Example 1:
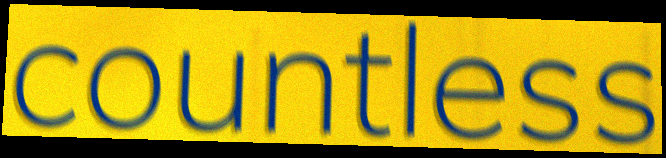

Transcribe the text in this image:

countless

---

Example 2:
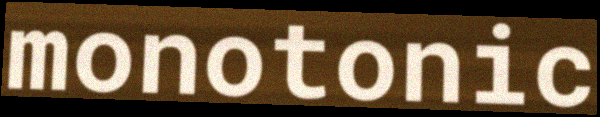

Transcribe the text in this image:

monotonic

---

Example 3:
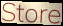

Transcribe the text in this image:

Store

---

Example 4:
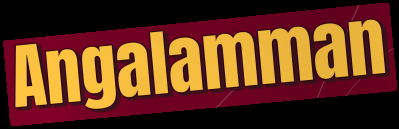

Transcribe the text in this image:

Angalamman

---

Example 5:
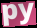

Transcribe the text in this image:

py